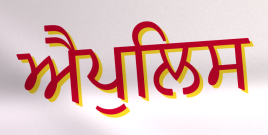
ਐਪੁਲਿਸ